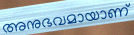
അനുഭവമായാണ്